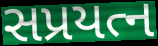
સપ્રયત્ન